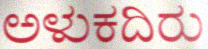
ಅಳುಕದಿರು